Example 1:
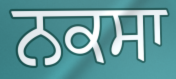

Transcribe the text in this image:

ਨਕਸਾ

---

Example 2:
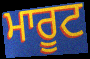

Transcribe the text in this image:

ਮਾਰੂਟ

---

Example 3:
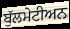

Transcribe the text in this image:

ਬੁੱਲਮੇਟੀਅਨ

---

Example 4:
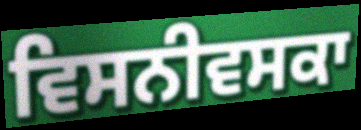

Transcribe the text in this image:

ਵਿਸਨੀਵਸਕਾ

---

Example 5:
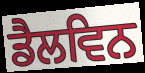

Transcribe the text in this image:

ਡੈਲਵਿਨ